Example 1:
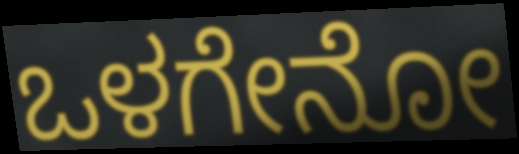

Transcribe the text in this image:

ಒಳಗೇನೋ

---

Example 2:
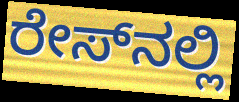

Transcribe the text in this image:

ರೇಸ್‍ನಲ್ಲಿ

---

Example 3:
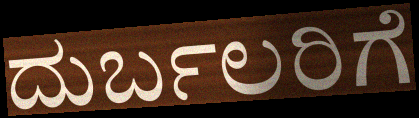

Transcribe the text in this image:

ದುರ್ಬಲರಿಗೆ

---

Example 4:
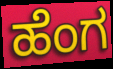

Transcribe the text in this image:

ಹೆಂಗ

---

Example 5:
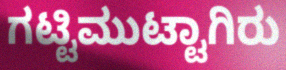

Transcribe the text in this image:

ಗಟ್ಟಿಮುಟ್ಟಾಗಿರು